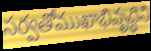
సర్వతోముఖాభివృద్ధిని